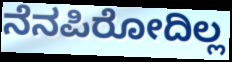
ನೆನಪಿರೋದಿಲ್ಲ